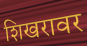
शिखरावर